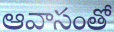
ఆవాసంతో